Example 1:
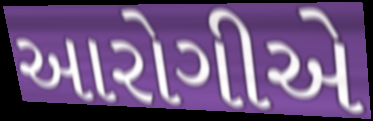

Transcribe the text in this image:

આરોગીએ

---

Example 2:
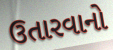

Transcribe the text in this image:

ઉતારવાનો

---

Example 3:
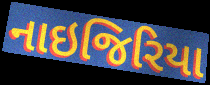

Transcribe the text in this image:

નાઇજિરિયા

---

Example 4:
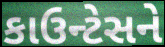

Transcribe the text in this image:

કાઉન્ટેસને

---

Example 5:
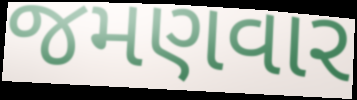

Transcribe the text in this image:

જમણવાર